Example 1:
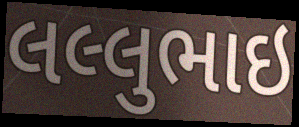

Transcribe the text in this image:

લલ્લુભાઇ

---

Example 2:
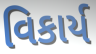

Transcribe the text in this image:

વિકાર્ય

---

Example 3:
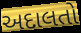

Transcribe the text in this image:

અદાલતો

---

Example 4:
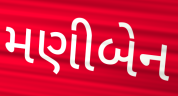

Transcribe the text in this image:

મણીબેન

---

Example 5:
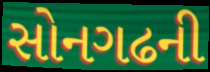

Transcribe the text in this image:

સોનગઢની